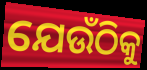
ଯେଉଁଠିକୁ